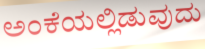
ಅಂಕೆಯಲ್ಲಿಡುವುದು